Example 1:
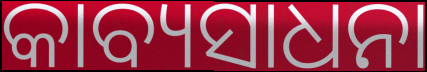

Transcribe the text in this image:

କାବ୍ୟସାଧନା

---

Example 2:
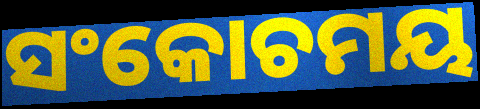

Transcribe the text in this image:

ସଂକୋଚମୟ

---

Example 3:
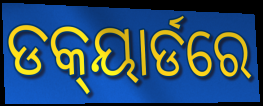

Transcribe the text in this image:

ଡକ୍‍ୟାର୍ଡରେ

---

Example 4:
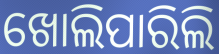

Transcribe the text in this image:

ଖୋଲିପାରିଲି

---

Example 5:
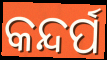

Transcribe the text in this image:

କନ୍ଦର୍ପ